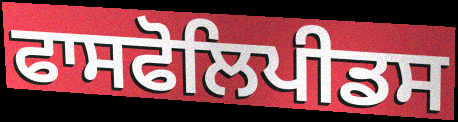
ਫਾਸਫੋਲਿਪੀਡਸ